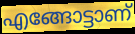
എങ്ങോട്ടാണ്